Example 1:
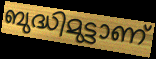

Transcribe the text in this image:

ബുദ്ധിമുട്ടാണ്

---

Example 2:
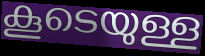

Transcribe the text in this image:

കൂടെയുള്ള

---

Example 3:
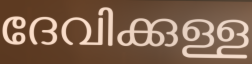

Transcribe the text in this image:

ദേവിക്കുള്ള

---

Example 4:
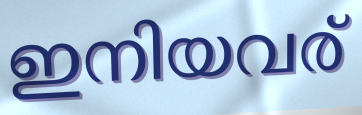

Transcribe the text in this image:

ഇനിയവര്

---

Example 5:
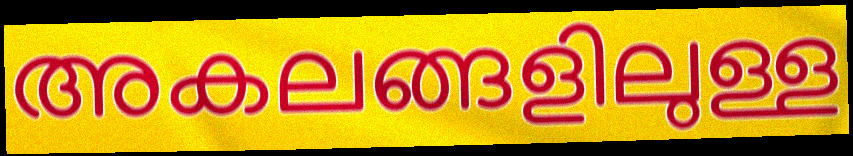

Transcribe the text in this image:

അകലങ്ങളിലുള്ള